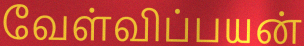
வேள்விப்பயன்